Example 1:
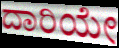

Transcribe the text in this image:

ದಾರಿಯೇ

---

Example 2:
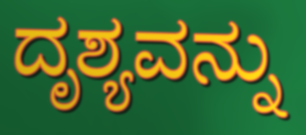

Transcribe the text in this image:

ದೃಶ್ಯವನ್ನು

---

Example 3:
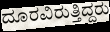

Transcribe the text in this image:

ದೂರವಿರುತ್ತಿದ್ದರು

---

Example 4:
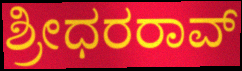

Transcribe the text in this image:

ಶ್ರೀಧರರಾವ್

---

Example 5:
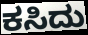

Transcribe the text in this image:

ಕಸಿದು